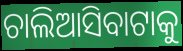
ଚାଲିଆସିବାଟାକୁ